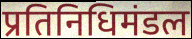
प्रतिनिधिमंडल